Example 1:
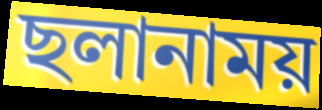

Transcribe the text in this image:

ছলানাময়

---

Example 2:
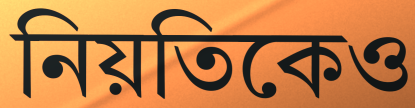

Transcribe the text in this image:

নিয়তিকেও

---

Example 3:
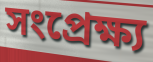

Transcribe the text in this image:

সংপ্রেক্ষ্য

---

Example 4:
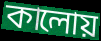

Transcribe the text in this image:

কালোয়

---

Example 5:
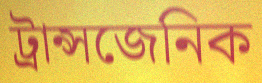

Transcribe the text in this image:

ট্রান্সজেনিক